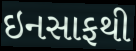
ઇનસાફથી